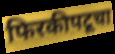
फिरकीपटूचा